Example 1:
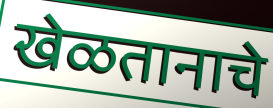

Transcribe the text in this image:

खेळतानाचे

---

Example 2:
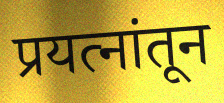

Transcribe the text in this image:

प्रयत्नांतून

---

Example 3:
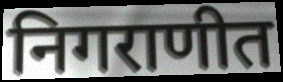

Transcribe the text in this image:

निगराणीत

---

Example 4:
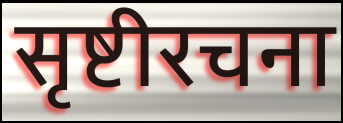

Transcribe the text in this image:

सृष्टीरचना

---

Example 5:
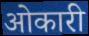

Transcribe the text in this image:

ओकारी